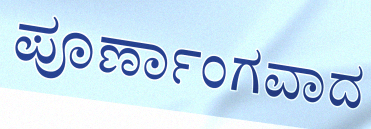
ಪೂರ್ಣಾಂಗವಾದ